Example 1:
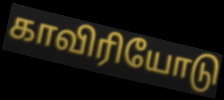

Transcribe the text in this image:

காவிரியோடு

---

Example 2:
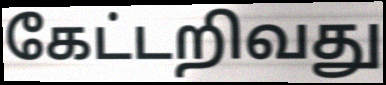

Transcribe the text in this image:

கேட்டறிவது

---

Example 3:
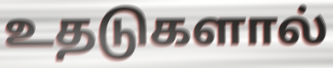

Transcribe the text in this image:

உதடுகளால்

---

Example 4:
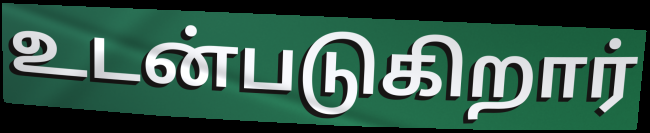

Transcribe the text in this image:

உடன்படுகிறார்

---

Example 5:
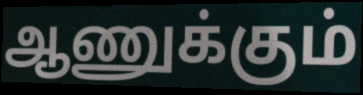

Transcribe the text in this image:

ஆணுக்கும்